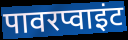
पावरप्वाइंट